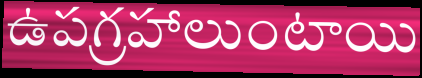
ఉపగ్రహాలుంటాయి